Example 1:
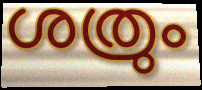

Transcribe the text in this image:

ശത്രും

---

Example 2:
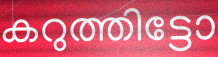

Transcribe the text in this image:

കറുത്തിട്ടോ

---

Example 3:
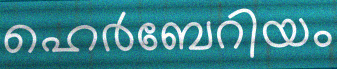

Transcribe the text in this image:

ഹെർബേറിയം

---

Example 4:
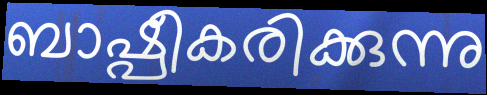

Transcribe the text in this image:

ബാഷ്പീകരിക്കുന്നു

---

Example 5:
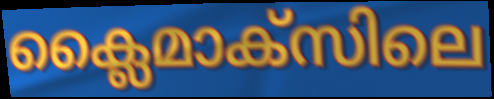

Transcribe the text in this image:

ക്ലൈമാക്സിലെ